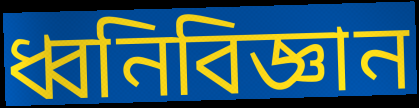
ধ্বনিবিজ্ঞান